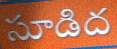
సూడిద